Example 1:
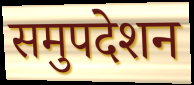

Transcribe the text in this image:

समुपदेशन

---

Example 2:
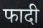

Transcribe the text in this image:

फादी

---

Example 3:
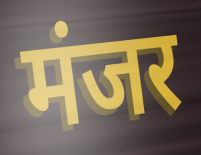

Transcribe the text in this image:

मंजर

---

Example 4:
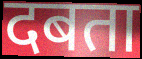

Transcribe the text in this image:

दबता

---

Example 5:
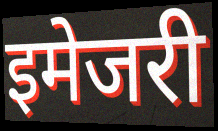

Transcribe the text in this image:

इमेजरी